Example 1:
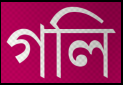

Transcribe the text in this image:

গলি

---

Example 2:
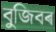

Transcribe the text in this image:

বুজিবৰ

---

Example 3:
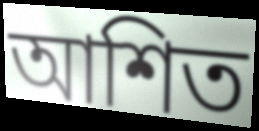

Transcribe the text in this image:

আশিত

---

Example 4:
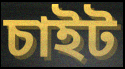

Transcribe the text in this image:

চাইট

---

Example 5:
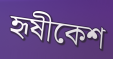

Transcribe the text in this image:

হৃষীকেশ